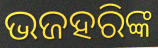
ଭଜହରିଙ୍କ